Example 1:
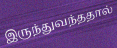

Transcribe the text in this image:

இருந்துவந்ததால்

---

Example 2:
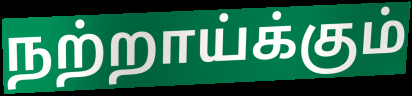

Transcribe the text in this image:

நற்றாய்க்கும்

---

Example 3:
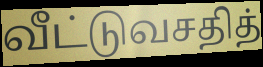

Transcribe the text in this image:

வீட்டுவசதித்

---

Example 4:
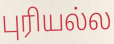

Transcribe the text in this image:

புரியல்ல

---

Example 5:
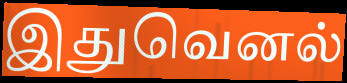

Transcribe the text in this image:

இதுவெனல்